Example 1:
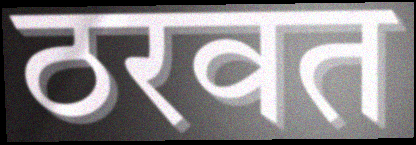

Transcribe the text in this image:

ठरवत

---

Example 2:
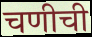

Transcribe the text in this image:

चणीची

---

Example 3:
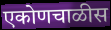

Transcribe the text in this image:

एकोणचाळीस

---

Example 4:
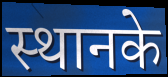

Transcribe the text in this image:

स्थानके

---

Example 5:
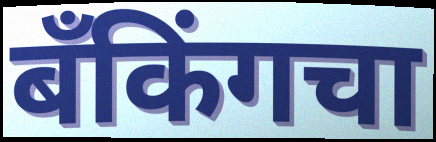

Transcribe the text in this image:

बँकिंगचा